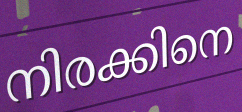
നിരക്കിനെ